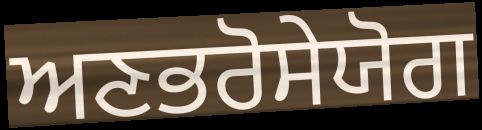
ਅਣਭਰੋਸੇਯੋਗ